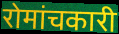
रोमांचकारी